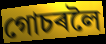
গোচৰলৈ